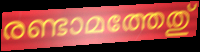
രണ്ടാമത്തേതു്